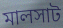
মালসাট